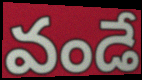
వండే